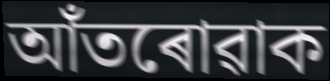
আঁতৰোৱাক